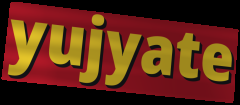
yujyate